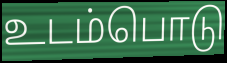
உடம்பொடு